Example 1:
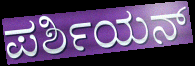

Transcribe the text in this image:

ಪರ್ಶಿಯನ್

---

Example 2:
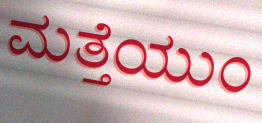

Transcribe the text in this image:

ಮತ್ತೆಯುಂ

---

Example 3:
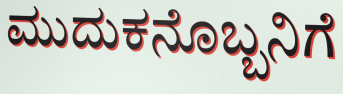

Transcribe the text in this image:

ಮುದುಕನೊಬ್ಬನಿಗೆ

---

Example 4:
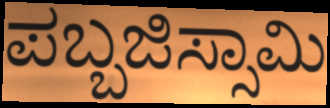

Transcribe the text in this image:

ಪಬ್ಬಜಿಸ್ಸಾಮಿ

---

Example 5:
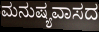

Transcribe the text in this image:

ಮನುಷ್ಯವಾಸದ